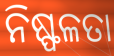
ନିଷ୍ଫଳତା